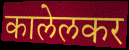
कालेलकर